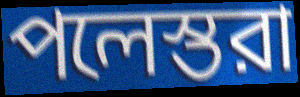
পলেস্তরা